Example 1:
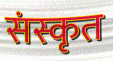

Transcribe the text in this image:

संस्‍कृत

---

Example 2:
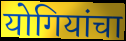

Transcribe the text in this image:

योगियांचा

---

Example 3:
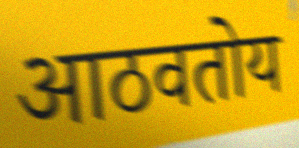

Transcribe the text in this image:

आठवतोय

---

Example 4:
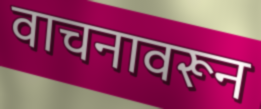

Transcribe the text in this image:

वाचनावरून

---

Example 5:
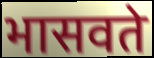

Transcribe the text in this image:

भासवते